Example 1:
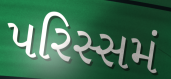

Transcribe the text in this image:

પરિસ્સમં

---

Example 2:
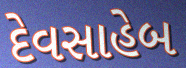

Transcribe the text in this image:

દેવસાહેબ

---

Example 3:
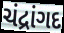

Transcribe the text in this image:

ચંદ્રાંગદ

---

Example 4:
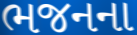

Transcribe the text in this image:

ભજનના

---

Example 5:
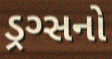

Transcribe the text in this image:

ડ્રગ્સનો